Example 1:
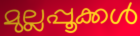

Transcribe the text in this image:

മുല്ലപ്പൂക്കൾ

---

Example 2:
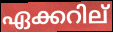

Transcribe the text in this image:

ഏക്കറില്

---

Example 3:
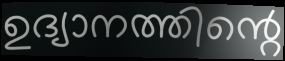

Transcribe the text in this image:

ഉദ്യാനത്തിന്റെ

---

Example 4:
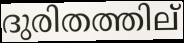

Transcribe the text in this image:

ദുരിതത്തില്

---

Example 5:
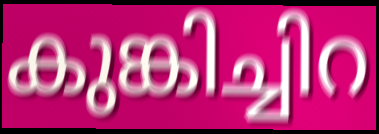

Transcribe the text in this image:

കുങ്കിച്ചിറ